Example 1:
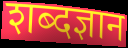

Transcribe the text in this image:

शब्दज्ञान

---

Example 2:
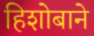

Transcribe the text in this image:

हिशोबाने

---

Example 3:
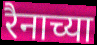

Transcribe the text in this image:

रैनाच्या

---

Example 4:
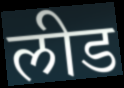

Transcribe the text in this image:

लीड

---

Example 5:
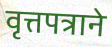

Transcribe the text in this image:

वृत्तपत्राने